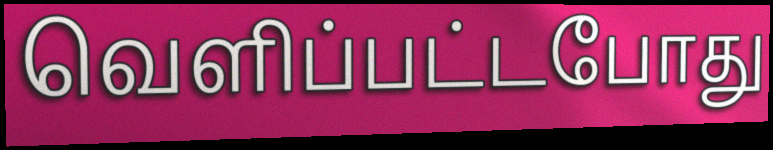
வெளிப்பட்டபோது